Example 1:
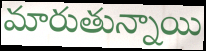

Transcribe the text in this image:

మారుతున్నాయి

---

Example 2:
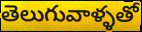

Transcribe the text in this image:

తెలుగువాళ్ళతో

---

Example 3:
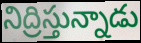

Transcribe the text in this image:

నిద్రిస్తున్నాడు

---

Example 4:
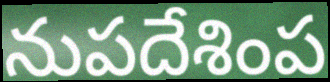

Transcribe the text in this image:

నుపదేశింప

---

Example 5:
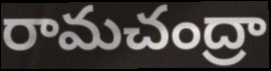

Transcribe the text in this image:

రామచంద్రా